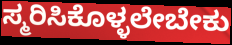
ಸ್ಮರಿಸಿಕೊಳ್ಳಲೇಬೇಕು